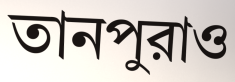
তানপুরাও